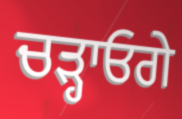
ਚੜ੍ਹਾਓਗੇ